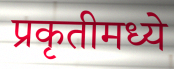
प्रकृतीमध्ये